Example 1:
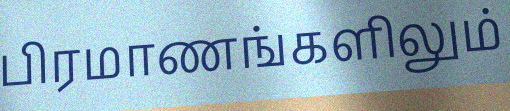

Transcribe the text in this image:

பிரமாணங்களிலும்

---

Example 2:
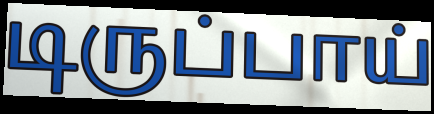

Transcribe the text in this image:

டிருப்பாய்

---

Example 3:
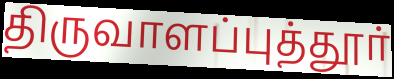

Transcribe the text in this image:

திருவாளப்புத்தூர்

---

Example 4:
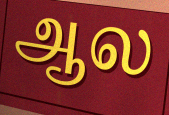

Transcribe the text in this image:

ஆல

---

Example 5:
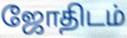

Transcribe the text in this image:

ஜோதிடம்